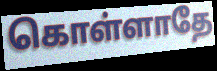
கொள்ளாதே